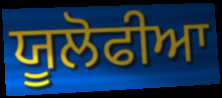
ਯੂਲੋਫੀਆ